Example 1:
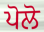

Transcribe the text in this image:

ਪੋਲੋ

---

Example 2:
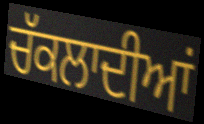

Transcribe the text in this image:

ਚੱਕਲਾਦੀਆਂ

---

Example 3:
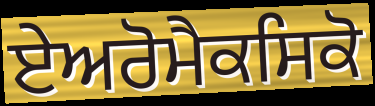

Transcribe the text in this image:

ਏਅਰੋਮੈਕਸਿਕੋ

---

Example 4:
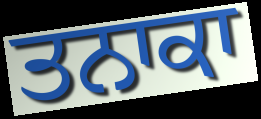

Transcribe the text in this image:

ਤਨਾਕਾ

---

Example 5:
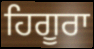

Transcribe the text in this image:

ਹਿਗੂਰਾ